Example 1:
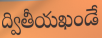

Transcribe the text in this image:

ద్వితీయఖండే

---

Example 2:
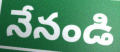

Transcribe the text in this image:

నేనండి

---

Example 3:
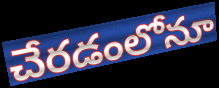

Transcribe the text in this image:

చేరడంలోనూ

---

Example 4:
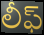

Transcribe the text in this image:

లీఫ్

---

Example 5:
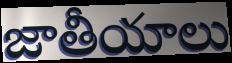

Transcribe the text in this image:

జాతీయాలు